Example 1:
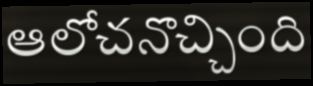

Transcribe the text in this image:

ఆలోచనొచ్చింది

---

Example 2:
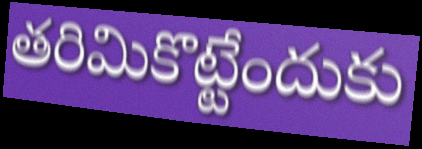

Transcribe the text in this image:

తరిమికొట్టేందుకు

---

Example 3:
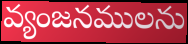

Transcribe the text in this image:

వ్యంజనములను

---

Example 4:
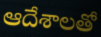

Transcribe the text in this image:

ఆదేశాలతో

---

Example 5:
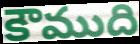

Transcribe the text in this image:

కౌముది